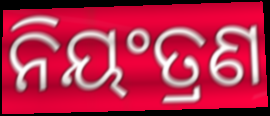
ନିୟଂତ୍ରଣ